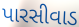
પારસીવાડ